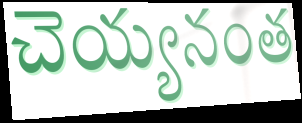
చెయ్యనంత